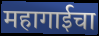
महागाईचा